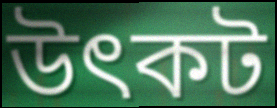
উৎকট